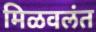
मिळवलंत